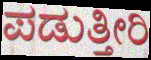
ಪಡುತ್ತೀರಿ